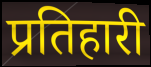
प्रतिहारी